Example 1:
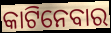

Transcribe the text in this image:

କାଟିନେବାର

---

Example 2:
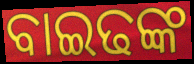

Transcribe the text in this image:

ବାଇଢଙ୍କ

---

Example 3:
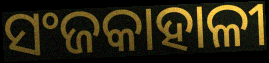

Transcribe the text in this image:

ସଂଜକାହାଳୀ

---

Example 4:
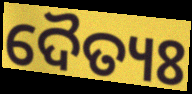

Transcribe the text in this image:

ଦୈତ୍ୟଃ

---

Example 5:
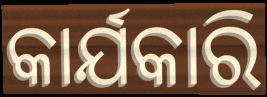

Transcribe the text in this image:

କାର୍ଯକାରି